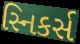
સ્નિકર્સ